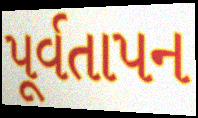
પૂર્વતાપન